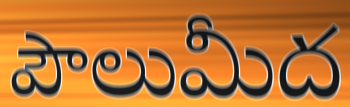
పౌలుమీద